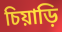
চিয়াড়ি